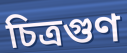
চিত্রগুণ